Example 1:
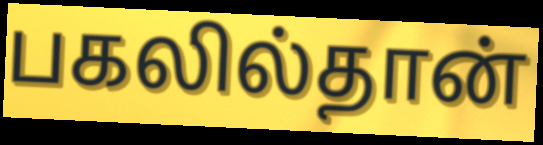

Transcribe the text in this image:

பகலில்தான்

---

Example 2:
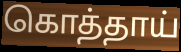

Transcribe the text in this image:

கொத்தாய்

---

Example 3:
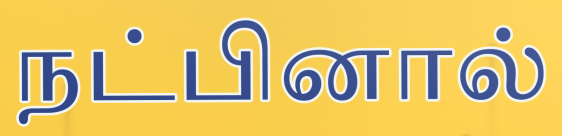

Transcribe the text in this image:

நட்பினால்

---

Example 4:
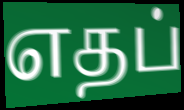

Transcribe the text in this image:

எதப்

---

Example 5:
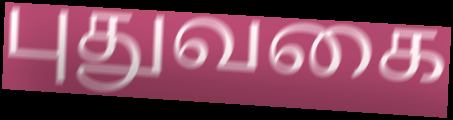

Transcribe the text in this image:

புதுவகை